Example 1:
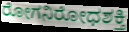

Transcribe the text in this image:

ರೋಗನಿರೋಧಶಕ್ತಿ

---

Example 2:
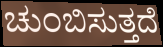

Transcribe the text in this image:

ಚುಂಬಿಸುತ್ತದೆ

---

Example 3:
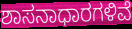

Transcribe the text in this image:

ಶಾಸನಾಧಾರಗಳಿವೆ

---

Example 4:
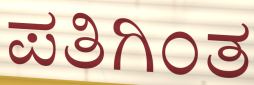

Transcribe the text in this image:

ಪತಿಗಿಂತ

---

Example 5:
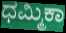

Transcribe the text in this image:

ಧಮ್ಮಿಕಾ